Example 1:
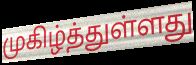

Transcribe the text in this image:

முகிழ்த்துள்ளது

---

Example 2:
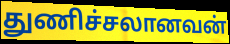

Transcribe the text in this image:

துணிச்சலானவன்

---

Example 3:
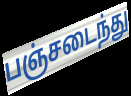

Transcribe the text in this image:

பஞ்சடைந்து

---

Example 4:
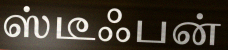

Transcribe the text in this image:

ஸ்டீஃபன்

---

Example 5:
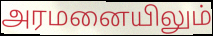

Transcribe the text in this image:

அரமனையிலும்